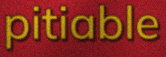
pitiable